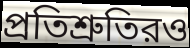
প্রতিশ্রুতিরও